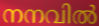
നനവിൽ